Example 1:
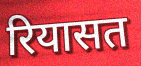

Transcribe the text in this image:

रियासत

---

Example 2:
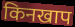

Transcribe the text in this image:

किनखाप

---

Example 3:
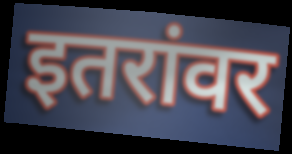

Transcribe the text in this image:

इतरांवर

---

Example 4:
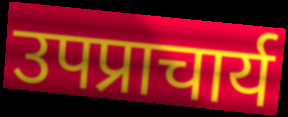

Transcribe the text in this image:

उपप्राचार्य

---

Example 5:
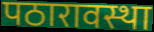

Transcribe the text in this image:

पठारावस्था